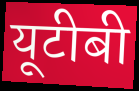
यूटीबी